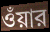
ওঁয়ার